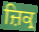
ਜ਼ਿਕ੍ਰ